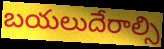
బయలుదేరాల్సి